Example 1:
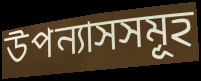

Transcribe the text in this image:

উপন্যাসসমূহ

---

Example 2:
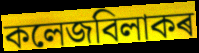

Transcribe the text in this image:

কলেজবিলাকৰ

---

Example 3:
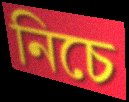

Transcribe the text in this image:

নিচে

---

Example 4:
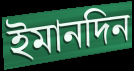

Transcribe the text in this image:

ইমানদিন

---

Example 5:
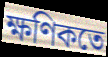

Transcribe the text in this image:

ক্ষণিকতে